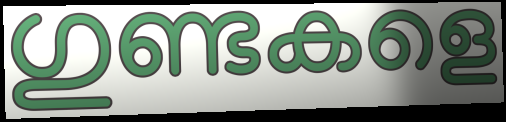
ഗുണ്ടകളെ